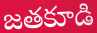
జతకూడి